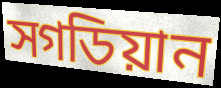
সগডিয়ান